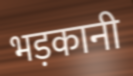
भड़कानी